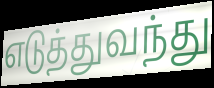
எடுத்துவந்து